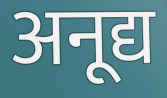
अनूद्य